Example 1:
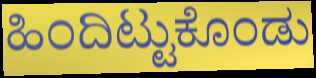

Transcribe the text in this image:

ಹಿಂದಿಟ್ಟುಕೊಂಡು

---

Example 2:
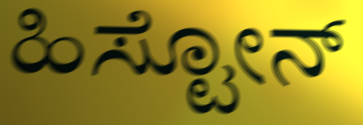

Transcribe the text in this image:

ಹಿಸ್ಟೋನ್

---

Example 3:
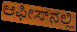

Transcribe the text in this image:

ಆಫೀಸ್‌ನಲ್ಲಿ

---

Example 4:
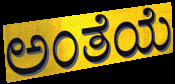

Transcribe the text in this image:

ಅಂತೆಯೆ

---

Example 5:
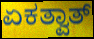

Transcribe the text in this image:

ಏಕತ್ವಾತ್